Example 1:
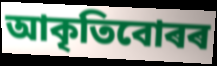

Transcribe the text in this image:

আকৃতিবোৰৰ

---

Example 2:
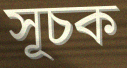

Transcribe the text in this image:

সূচক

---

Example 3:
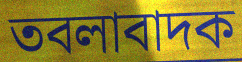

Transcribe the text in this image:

তবলাবাদক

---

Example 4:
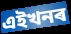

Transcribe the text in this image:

এইখনৰ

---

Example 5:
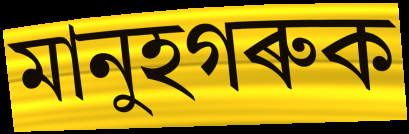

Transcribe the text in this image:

মানুহগৰুক